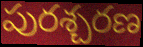
పురశ్చరణ